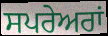
ਸਪਰੇਅਰਾਂ